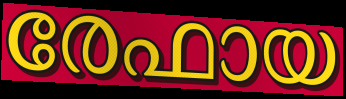
രേഫായ